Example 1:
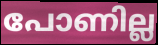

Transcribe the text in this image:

പോണില്ല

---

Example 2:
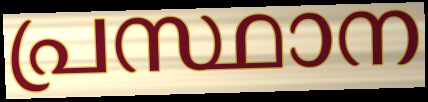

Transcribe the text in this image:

പ്രസ്ഥാന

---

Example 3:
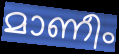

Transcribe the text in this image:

മാണീം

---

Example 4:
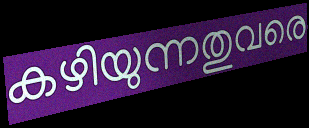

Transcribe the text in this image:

കഴിയുന്നതുവരെ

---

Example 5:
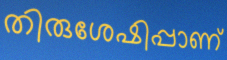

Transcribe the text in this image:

തിരുശേഷിപ്പാണ്